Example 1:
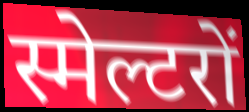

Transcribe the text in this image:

स्मेल्टरों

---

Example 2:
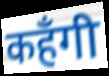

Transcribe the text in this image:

कहँगी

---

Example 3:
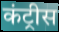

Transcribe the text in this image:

कंट्रीस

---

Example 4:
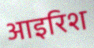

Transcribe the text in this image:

आइरिश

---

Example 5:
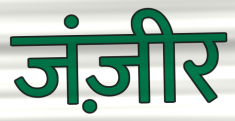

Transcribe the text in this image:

जंज़ीर